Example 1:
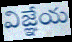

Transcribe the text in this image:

విజ్ఞేయ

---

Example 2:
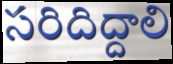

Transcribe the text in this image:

సరిదిద్దాలి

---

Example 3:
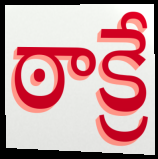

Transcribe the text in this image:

ఠాక్రే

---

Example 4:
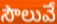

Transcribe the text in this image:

సౌలువే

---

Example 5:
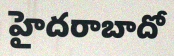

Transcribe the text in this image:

హైదరాబాదో